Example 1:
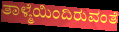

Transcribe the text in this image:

ತಾಳ್ಮೆಯಿಂದಿರುವಂತೆ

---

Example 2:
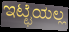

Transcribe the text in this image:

ಇಟ್ಟೆಯಲ್ಲ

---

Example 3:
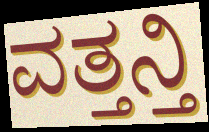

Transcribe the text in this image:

ವತ್ತನ್ತಿ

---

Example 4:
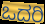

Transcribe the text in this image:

ಒದರಿ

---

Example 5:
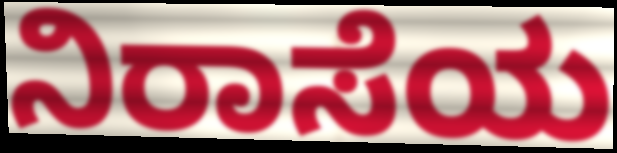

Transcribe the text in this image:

ನಿರಾಸೆಯ